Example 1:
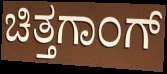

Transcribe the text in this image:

ಚಿತ್ತಗಾಂಗ್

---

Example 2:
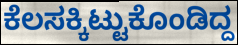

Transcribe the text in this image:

ಕೆಲಸಕ್ಕಿಟ್ಟುಕೊಂಡಿದ್ದ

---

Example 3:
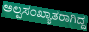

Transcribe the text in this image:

ಅಲ್ಪಸಂಖ್ಯಾತರಾಗಿದ್ದ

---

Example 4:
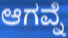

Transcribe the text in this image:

ಆಗವ್ನೆ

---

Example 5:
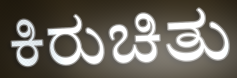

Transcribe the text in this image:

ಕಿರುಚಿತು